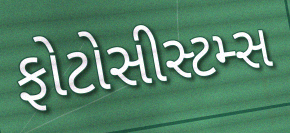
ફોટોસીસ્ટમ્સ